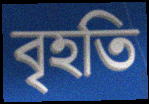
বৃহতি